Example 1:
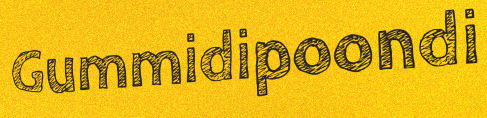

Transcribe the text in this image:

Gummidipoondi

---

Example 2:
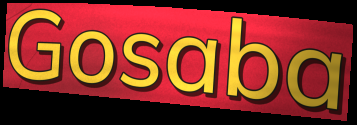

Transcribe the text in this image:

Gosaba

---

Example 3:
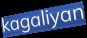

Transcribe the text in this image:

kagaliyan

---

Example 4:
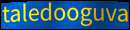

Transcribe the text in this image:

taledooguva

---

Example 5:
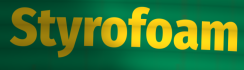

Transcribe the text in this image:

Styrofoam